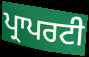
ਪ੍ਰਾਪਰਟੀ